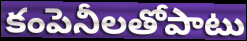
కంపెనీలతోపాటు